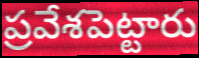
ప్రవేశపెట్టారు